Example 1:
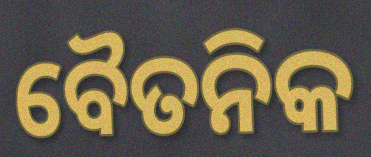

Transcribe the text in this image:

ବୈତନିକ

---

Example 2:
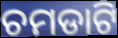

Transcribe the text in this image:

ଚମଡାଟି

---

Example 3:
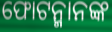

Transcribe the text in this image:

ଫୋଟନ୍ମାନଙ୍କ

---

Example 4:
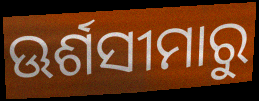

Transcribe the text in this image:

ଊର୍ଶସୀମାରୁ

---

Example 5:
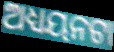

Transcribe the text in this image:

ଅଧ୍ୟୟନଟା